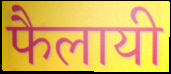
फैलायी